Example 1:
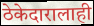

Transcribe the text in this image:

ठेकेदारालाही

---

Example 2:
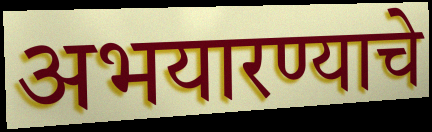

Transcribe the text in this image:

अभयारण्याचे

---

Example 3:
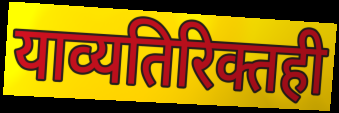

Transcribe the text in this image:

याव्यतिरिक्तही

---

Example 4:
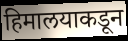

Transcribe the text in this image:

हिमालयाकडून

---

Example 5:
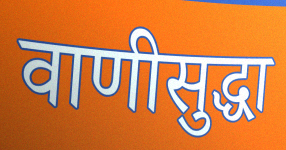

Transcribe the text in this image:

वाणीसुद्धा